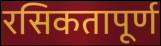
रसिकतापूर्ण